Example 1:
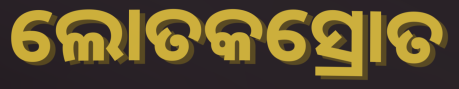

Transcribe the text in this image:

ଲୋତକସ୍ରୋତ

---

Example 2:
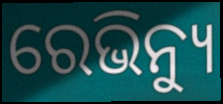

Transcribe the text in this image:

ରେଭିନ୍ୟୁ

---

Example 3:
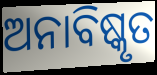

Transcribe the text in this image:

ଅନାବିଷ୍କୃତ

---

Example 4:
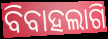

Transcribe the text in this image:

ବିବାହଲାଗି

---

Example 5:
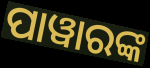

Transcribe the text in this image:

ପାୱାରଙ୍କ